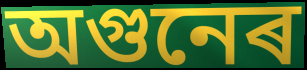
অগুনেৰ